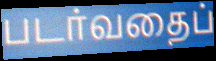
படர்வதைப்